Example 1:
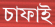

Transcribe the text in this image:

চাফাই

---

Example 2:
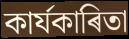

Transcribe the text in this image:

কাৰ্যকাৰিতা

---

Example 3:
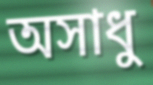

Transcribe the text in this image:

অসাধু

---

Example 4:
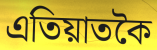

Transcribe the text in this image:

এতিয়াতকৈ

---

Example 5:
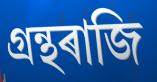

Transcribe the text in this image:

গ্ৰন্থৰাজি